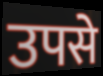
उपसे